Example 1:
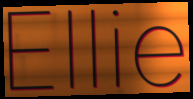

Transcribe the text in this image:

Ellie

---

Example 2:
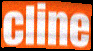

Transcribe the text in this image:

cline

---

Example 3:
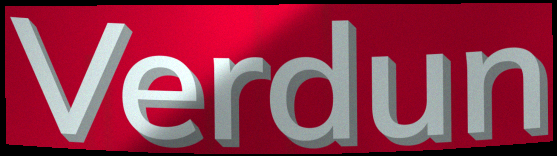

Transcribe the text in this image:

Verdun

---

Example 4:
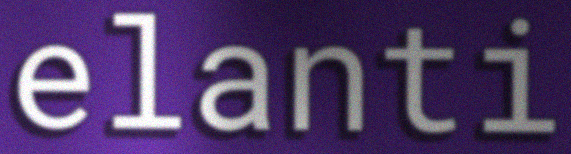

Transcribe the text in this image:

elanti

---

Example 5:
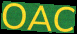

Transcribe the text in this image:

OAC